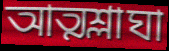
আত্মশ্লাঘা